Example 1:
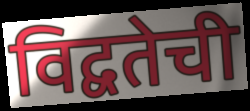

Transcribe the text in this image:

विद्वतेची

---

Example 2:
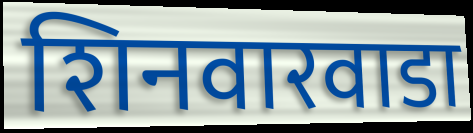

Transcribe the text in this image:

शिनवारवाडा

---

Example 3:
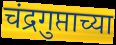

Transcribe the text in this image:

चंद्रगुप्ताच्या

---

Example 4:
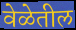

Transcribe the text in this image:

वेळेतील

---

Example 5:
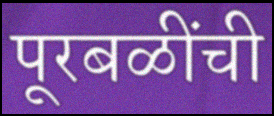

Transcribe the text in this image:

पूरबळींची